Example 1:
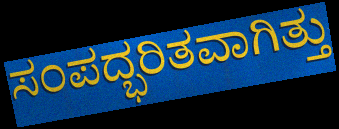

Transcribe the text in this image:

ಸಂಪದ್ಭರಿತವಾಗಿತ್ತು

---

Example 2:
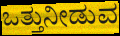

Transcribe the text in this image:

ಒತ್ತುನೀಡುವ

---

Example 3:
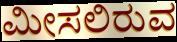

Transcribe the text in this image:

ಮೀಸಲಿರುವ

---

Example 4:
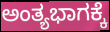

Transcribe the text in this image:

ಅಂತ್ಯಭಾಗಕ್ಕೆ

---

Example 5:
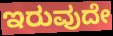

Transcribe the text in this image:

ಇರುವುದೇ